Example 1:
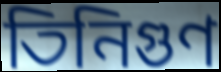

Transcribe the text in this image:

তিনিগুণ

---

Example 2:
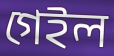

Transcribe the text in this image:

গেইল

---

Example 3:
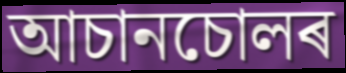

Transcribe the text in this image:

আচানচোলৰ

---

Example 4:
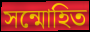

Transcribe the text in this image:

সন্মোহিত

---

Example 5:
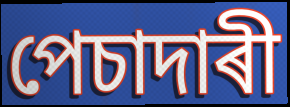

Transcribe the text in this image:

পেচাদাৰী